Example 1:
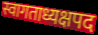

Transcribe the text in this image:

स्वागताध्यक्षपद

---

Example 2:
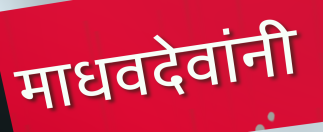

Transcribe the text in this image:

माधवदेवांनी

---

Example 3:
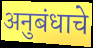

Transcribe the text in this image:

अनुबंधाचे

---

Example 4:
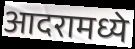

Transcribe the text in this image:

आदरामध्ये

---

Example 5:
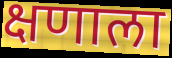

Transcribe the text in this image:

क्षणाला